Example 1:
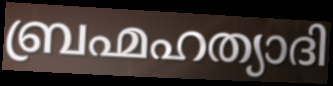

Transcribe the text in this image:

ബ്രഹ്മഹത്യാദി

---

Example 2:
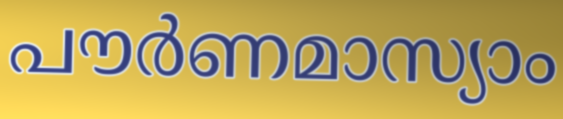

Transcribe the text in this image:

പൗർണമാസ്യാം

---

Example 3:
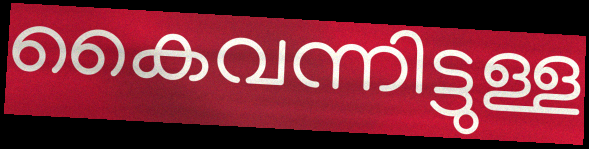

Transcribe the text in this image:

കൈവന്നിട്ടുള്ള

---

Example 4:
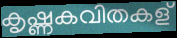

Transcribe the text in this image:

കൃഷ്ണകവിതകള്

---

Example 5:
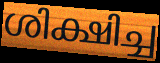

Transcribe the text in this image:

ശിക്ഷിച്ച